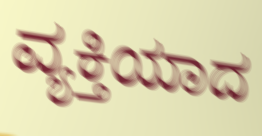
ವ್ಯಕ್ತಿಯಾದ